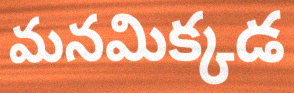
మనమిక్కడ